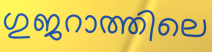
ഗുജറാത്തിലെ